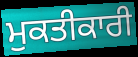
ਮੁਕਤੀਕਾਰੀ